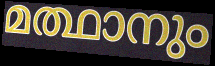
മത്ഥാനും